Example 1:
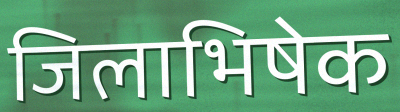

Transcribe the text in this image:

जिलाभिषेक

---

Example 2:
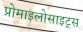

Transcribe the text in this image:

प्रोमाइलोसाइट्स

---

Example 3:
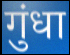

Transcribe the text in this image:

गुंधा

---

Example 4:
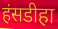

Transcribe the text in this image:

हंसडीहा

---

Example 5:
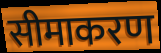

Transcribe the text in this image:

सीमाकरण